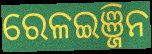
ରେଳଇଞ୍ଜିନ